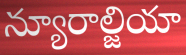
న్యూరాల్జియా